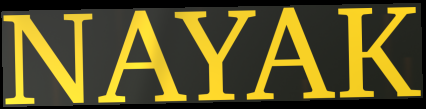
NAYAK